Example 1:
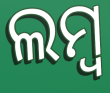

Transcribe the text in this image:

ଲମ୍ବ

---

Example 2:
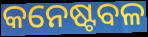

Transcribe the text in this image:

କନେଷ୍ଟବଳ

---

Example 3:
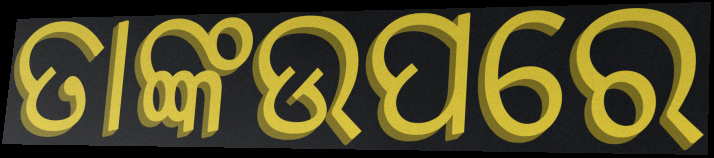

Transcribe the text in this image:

ତାଙ୍କଉପରେ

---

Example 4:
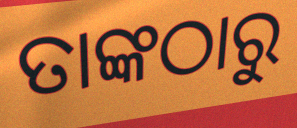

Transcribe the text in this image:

ତାଙ୍କଠାରୁ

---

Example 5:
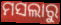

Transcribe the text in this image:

ମସଲାରୁ